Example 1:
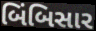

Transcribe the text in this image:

બિંબિસાર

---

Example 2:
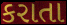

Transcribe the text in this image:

કરાતા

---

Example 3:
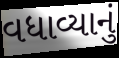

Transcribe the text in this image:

વધાવ્યાનું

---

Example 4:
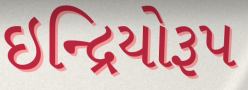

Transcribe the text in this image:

ઇન્દ્રિયોરૂપ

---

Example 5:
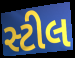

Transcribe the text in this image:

સ્ટીલ